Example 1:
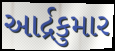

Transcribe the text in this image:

આર્દ્રકુમાર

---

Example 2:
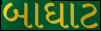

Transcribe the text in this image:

બાઘાટ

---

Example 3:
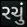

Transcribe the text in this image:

રચું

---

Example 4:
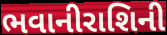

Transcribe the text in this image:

ભવાનીરાશિની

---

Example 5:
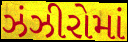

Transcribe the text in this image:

ઝંઝીરોમાં